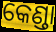
କେଣ୍ଡା